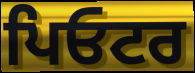
ਪਿਓਟਰ